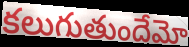
కలుగుతుందేమో